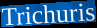
Trichuris